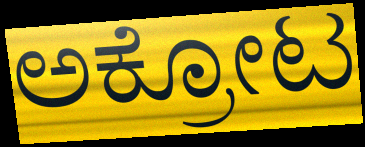
ಅಕ್ರೋಟ